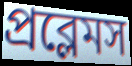
প্রব্লেমস